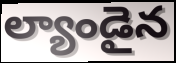
ల్యాండైన